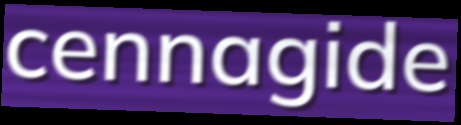
cennagide